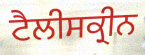
ਟੈਲੀਸਕ੍ਰੀਨ